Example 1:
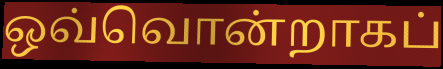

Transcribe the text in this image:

ஒவ்வொன்றாகப்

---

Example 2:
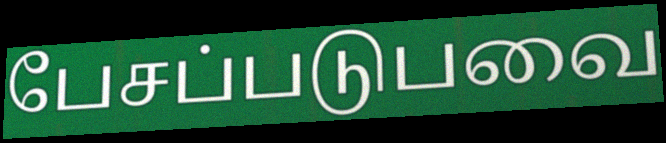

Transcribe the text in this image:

பேசப்படுபவை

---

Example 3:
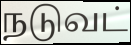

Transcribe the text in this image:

நடுவட்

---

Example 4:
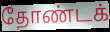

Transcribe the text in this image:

தோண்டக்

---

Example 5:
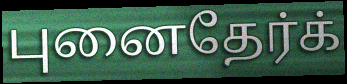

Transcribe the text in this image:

புனைதேர்க்